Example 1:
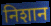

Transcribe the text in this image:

निशान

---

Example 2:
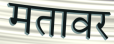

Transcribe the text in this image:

मतावर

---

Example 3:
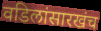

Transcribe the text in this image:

वडिलांसारखंच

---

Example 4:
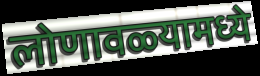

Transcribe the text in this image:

लोणावळ्यामध्ये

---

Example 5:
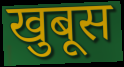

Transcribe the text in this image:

खुबूस